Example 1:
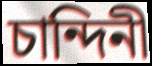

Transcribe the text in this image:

চান্দিনী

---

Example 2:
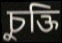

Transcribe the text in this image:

চুক্তি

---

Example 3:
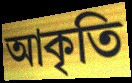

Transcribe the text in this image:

আকৃতি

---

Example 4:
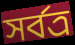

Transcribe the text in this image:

সর্বত্র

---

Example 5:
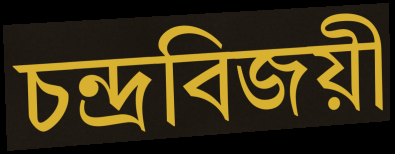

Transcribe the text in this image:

চন্দ্রবিজয়ী